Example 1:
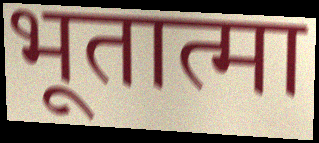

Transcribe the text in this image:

भूतात्मा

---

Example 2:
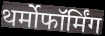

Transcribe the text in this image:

थर्मोफॉर्मिंग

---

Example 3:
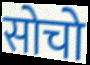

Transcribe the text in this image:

सोचो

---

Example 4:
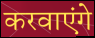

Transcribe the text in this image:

करवाएंगे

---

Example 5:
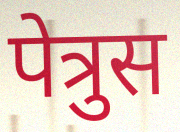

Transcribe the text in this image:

पेत्रुस